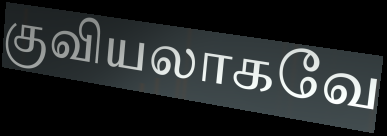
குவியலாகவே